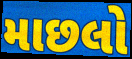
માછલો